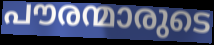
പൗരന്മാരുടെ